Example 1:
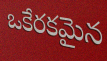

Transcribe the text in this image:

ఒకేరకమైన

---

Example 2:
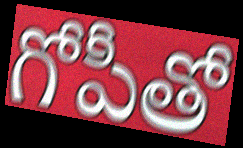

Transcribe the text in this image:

గోపీతో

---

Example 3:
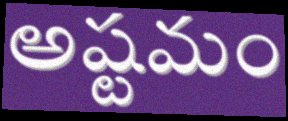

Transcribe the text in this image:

అష్టమం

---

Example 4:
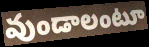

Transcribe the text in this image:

వుండాలంటూ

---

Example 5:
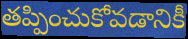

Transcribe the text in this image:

తప్పించుకోవడానికీ